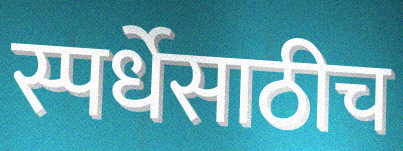
स्पर्धेसाठीच